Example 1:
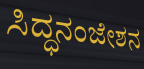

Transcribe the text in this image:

ಸಿದ್ಧನಂಜೇಶನ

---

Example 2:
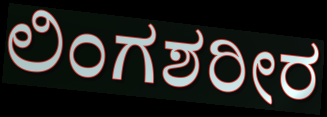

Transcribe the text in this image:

ಲಿಂಗಶರೀರ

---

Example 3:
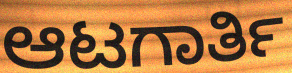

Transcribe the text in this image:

ಆಟಗಾರ್ತಿ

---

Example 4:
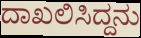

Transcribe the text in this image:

ದಾಖಲಿಸಿದ್ದನು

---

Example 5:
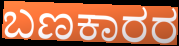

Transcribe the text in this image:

ಬಣಕಾರರ